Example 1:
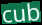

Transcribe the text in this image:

cub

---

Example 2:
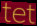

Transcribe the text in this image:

tet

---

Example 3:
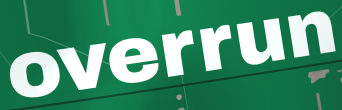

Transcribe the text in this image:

overrun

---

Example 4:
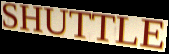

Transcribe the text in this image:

SHUTTLE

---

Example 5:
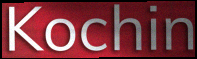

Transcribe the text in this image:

Kochin